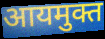
आयमुक्त